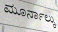
ಮೂರ್ನಾಲ್ಕು